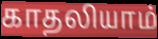
காதலியாம்